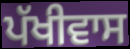
ਪੱਖੀਵਾਸ